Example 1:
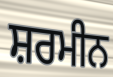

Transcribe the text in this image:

ਸ਼ਰਮੀਨ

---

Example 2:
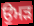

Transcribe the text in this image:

ਉਮੜ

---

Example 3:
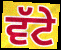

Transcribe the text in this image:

ਵੱਟੇ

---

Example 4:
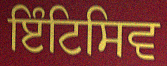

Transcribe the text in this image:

ਇੰਟਿਸਿਵ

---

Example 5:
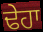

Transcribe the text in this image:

ਢੇਹਾ